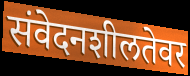
संवेदनशीलतेवर